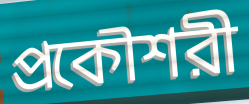
প্রকৌশরী